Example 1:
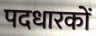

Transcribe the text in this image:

पदधारकों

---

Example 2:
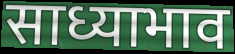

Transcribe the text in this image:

साध्याभाव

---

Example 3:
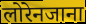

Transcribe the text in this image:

लोरेनजाना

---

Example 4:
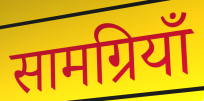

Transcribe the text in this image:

सामग्रियाँ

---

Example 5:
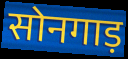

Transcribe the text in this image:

सोनगाड़